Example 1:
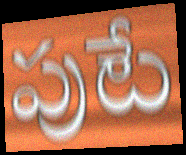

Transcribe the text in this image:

పుటే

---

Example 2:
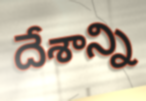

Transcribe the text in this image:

దేశాన్ని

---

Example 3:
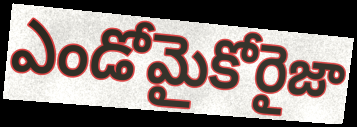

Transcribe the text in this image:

ఎండోమైకోరైజా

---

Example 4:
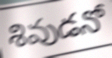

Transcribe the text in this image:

శివుడనో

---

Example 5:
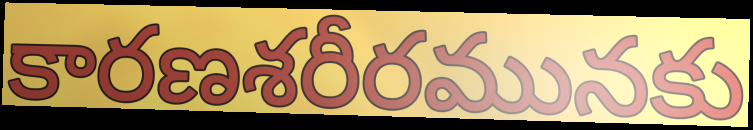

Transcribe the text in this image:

కారణశరీరమునకు